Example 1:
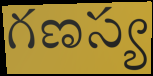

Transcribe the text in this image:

గణస్య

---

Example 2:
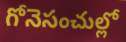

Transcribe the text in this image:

గోనెసంచుల్లో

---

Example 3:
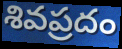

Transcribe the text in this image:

శివప్రదం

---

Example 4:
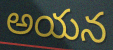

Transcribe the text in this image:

అయన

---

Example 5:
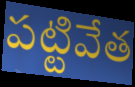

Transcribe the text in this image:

పట్టివేత